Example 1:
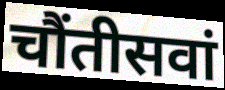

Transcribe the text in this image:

चौंतीसवां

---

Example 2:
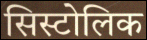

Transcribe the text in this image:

सिस्टोलिक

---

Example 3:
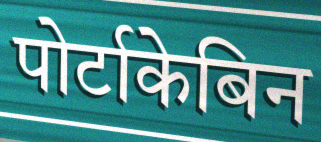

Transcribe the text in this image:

पोर्टाकेबिन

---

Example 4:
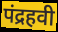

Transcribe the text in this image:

पंद्रहवी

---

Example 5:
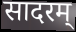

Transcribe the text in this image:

सादरम्